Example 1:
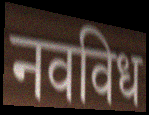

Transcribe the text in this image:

नवविध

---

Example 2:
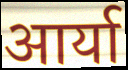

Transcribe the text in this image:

आर्या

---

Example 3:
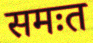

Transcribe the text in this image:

समःत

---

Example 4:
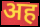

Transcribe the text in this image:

अह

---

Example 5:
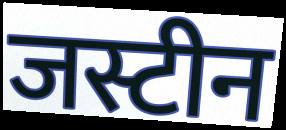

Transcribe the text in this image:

जस्टीन